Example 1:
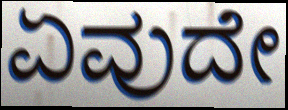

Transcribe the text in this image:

ಏವುದೇ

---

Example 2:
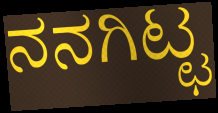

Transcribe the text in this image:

ನನಗಿಟ್ಟ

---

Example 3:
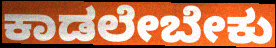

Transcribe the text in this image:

ಕಾಡಲೇಬೇಕು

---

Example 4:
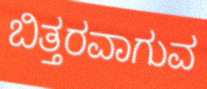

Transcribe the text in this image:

ಬಿತ್ತರವಾಗುವ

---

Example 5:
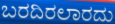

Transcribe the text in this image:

ಬರದಿರಲಾರದು